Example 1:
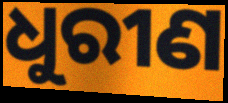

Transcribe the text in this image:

ଧୁରୀଣ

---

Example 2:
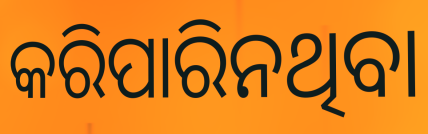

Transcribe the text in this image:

କରିପାରିନଥିବା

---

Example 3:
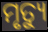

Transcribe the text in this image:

ମୃତ୍ୟୁ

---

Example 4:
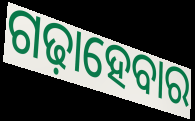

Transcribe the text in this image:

ଗଢ଼ାହେବାର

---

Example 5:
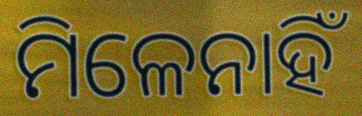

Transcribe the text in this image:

ମିଳେନାହିଁ